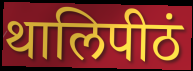
थालिपीठं